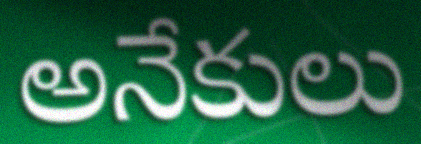
అనేకులు